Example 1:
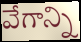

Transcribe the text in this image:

వేగాన్ని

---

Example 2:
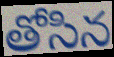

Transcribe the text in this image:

తోసిన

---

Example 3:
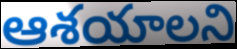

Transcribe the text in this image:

ఆశయాలని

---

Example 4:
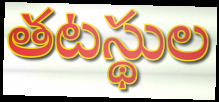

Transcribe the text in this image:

తటస్థుల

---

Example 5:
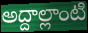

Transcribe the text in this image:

అద్దాల్లాంటి